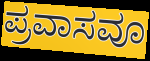
ಪ್ರವಾಸವೂ